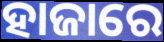
ହାଜାରେ